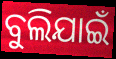
ବୁଲିଯାଇଁ